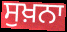
ਸੁਖ਼ਨਾ